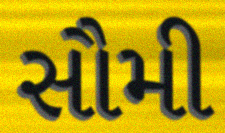
સૌમી